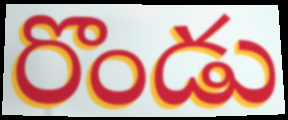
రొండు